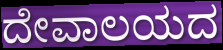
ದೇವಾಲಯದ